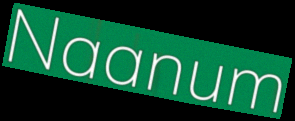
Naanum